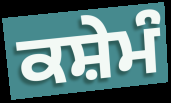
ਕਸ਼ੇਮੰ